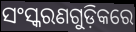
ସଂସ୍କରଣଗୁଡ଼ିକରେ